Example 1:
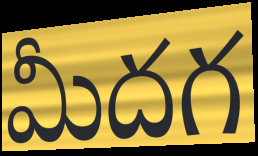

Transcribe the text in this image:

మీదగ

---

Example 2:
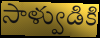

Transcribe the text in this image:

సాళ్వుడికి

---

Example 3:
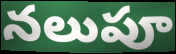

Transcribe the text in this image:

నలుపూ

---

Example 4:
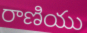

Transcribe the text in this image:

రాణియు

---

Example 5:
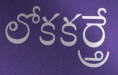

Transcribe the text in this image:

లోకకర్త్రే